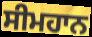
ਸੀਮਹਾਨ